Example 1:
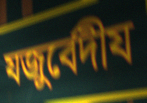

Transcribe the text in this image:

যজুর্বেদীয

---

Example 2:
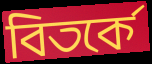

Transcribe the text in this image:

বিতর্কে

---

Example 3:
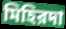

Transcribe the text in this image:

মিহিরদা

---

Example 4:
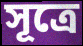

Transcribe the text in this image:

সূত্রে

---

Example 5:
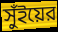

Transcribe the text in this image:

সুঁইয়ের